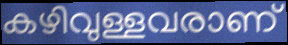
കഴിവുള്ളവരാണ്